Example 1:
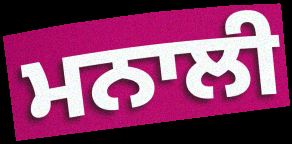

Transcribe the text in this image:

ਮਨਾਲੀ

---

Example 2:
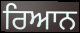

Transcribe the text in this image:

ਰਿਆਨ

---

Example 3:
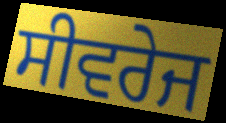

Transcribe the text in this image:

ਸੀਵਰੇਜ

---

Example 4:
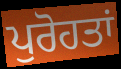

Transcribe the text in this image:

ਪੁਰੋਹਤਾਂ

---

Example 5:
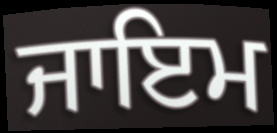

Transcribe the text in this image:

ਜਾਇਮ